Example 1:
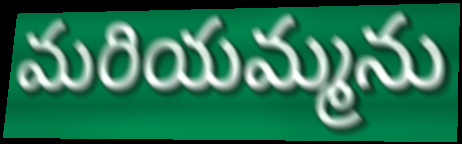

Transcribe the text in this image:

మరియమ్మను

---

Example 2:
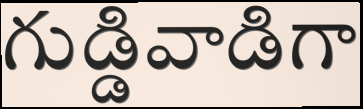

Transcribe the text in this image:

గుడ్డివాడిగా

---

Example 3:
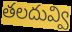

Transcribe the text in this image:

తలదువ్వి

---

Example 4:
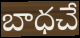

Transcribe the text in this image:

బాధచే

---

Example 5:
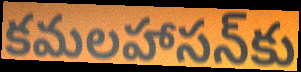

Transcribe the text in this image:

కమలహాసన్‌కు